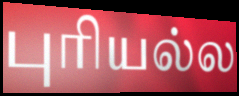
புரியல்ல